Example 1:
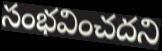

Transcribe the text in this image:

సంభవించదని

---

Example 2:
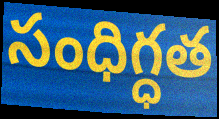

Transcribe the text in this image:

సంధిగ్ధత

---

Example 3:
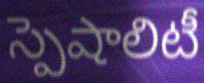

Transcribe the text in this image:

స్పెషాలిటీ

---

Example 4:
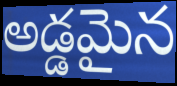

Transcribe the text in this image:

అడ్డమైన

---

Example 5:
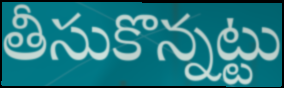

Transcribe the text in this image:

తీసుకొన్నట్టు